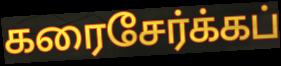
கரைசேர்க்கப்